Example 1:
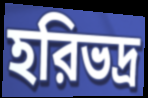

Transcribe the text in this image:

হরিভদ্র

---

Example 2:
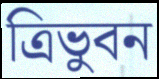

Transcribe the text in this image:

ত্রিভুবন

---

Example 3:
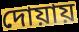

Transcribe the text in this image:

দোয়ায়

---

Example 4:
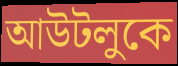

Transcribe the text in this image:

আউটলুকে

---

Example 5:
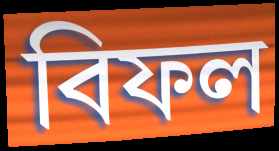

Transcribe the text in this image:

বিফল